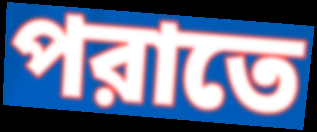
পরাতে